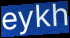
eykh